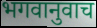
भगवानुवाच